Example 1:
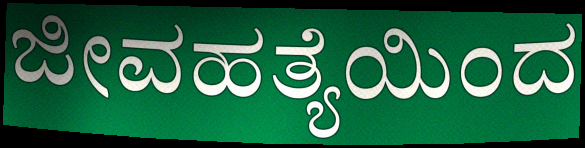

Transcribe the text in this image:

ಜೀವಹತ್ಯೆಯಿಂದ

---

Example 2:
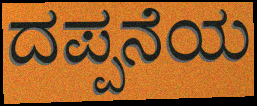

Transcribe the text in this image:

ದಪ್ಪನೆಯ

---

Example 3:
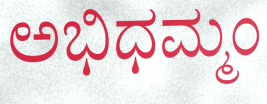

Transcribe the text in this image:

ಅಭಿಧಮ್ಮಂ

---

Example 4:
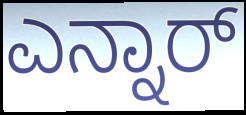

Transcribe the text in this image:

ಎನ್ನಾರ್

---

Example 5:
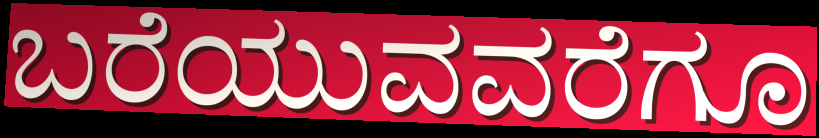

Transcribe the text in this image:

ಬರೆಯುವವರೆಗೂ